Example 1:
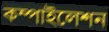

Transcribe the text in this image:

কম্পাইলেশন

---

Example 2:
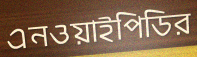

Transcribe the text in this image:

এনওয়াইপিডির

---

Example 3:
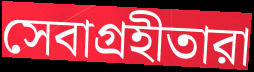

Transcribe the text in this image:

সেবাগ্রহীতারা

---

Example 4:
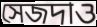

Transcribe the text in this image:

সেজদাও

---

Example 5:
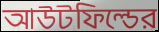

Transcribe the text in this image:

আউটফিল্ডের